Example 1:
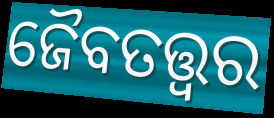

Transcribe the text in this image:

ଜୈବତତ୍ତ୍ୱର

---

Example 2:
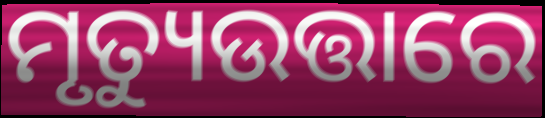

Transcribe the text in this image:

ମୃତ୍ୟୁଉତ୍ତାରେ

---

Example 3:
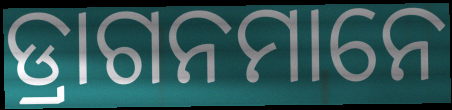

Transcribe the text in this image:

ଡ୍ରାଗନମାନେ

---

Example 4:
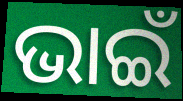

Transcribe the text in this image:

ଭାଇଁ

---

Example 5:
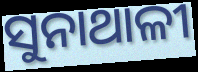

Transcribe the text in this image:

ସୁନାଥାଳୀ